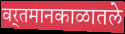
वर्तमानकाळातले